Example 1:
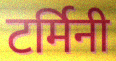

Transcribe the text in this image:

टर्मिनी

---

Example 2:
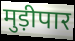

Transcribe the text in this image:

मुड़ीपार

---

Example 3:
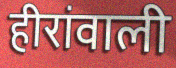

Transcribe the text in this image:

हीरांवाली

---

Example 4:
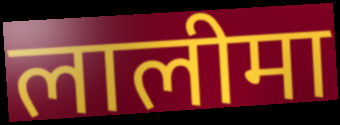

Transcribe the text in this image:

लालीमा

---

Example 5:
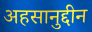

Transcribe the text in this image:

अहसानुद्दीन